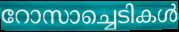
റോസാച്ചെടികൾ